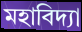
মহাবিদ্যা